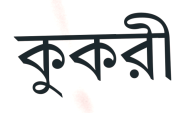
কুকরী